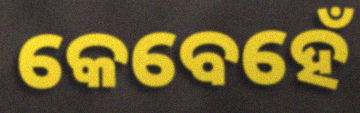
କେବେହେଁ